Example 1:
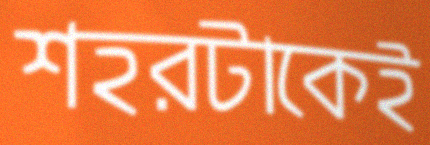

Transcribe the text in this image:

শহরটাকেই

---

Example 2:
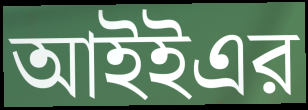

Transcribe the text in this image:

আইইএর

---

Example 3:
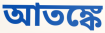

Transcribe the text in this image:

আতঙ্কে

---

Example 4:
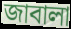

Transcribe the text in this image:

জাবালা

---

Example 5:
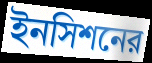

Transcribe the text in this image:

ইনসিশনের